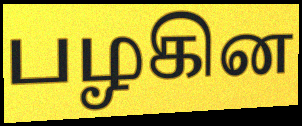
பழகின